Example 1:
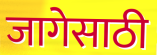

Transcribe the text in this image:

जागेसाठी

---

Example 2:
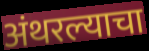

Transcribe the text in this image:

अंथरल्याचा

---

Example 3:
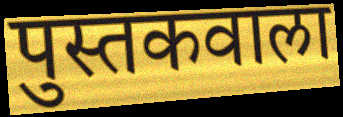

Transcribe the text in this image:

पुस्तकवाला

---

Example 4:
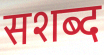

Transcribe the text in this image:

सशब्द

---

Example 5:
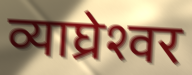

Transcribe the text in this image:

व्याघ्रेश्वर